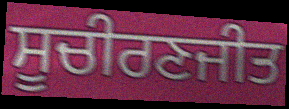
ਸੂਚੀਰਣਜੀਤ